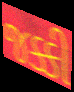
જક્કી